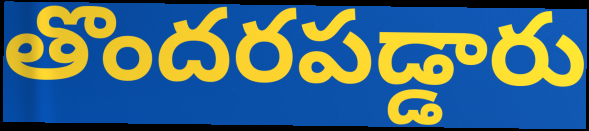
తొందరపడ్డారు